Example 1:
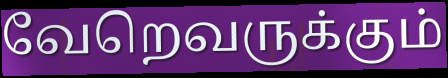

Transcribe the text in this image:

வேறெவருக்கும்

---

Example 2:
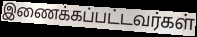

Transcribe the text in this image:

இணைக்கப்பட்டவர்கள்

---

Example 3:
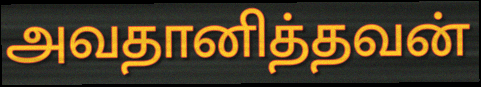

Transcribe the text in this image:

அவதானித்தவன்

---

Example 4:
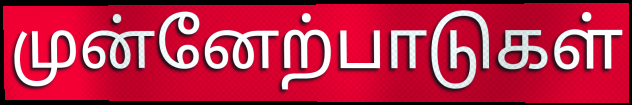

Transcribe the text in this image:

முன்னேற்பாடுகள்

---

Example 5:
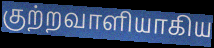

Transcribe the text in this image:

குற்றவாளியாகிய